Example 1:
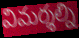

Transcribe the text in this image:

విమర్శల్ని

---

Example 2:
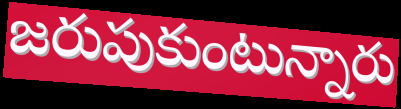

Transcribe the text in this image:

జరుపుకుంటున్నారు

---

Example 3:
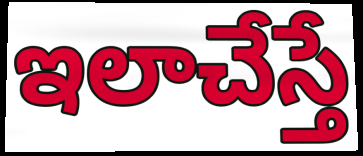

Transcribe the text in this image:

ఇలాచేస్తే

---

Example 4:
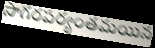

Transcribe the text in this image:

సాగరపర్యంతమయిన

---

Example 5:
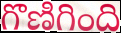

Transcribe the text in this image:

గొణిగింది